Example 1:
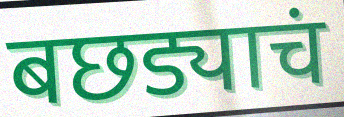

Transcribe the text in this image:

बछड्याचं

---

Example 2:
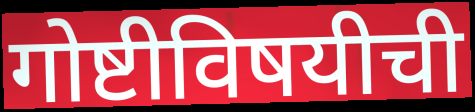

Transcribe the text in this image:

गोष्टीविषयीची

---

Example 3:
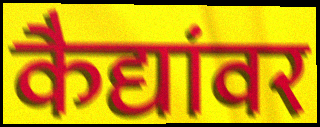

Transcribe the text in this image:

कैद्यांवर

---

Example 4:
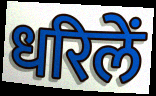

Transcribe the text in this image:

धरिलें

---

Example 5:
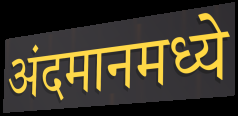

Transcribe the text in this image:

अंदमानमध्ये